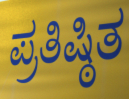
ಪ್ರತಿಷ್ಠಿತ